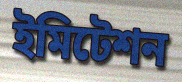
ইমিটেশন